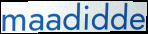
maadidde